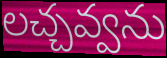
లచ్చవ్వను